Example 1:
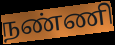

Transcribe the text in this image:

நண்ணி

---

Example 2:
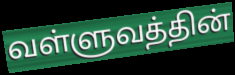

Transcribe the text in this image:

வள்ளுவத்தின்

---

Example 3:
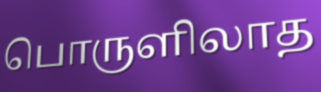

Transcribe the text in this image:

பொருளிலாத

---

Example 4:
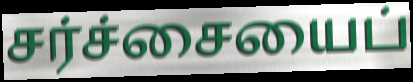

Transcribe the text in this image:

சர்ச்சையைப்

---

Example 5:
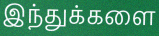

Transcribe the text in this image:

இந்துக்களை